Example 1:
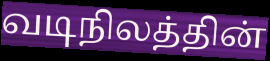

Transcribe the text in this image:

வடிநிலத்தின்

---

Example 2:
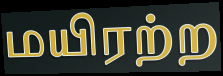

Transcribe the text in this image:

மயிரற்ற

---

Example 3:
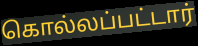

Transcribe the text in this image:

கொல்லப்பட்டார்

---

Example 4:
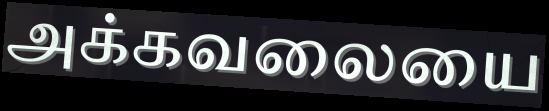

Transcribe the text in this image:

அக்கவலையை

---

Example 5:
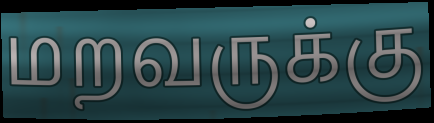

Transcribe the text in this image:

மறவருக்கு